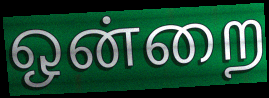
ஒன்றை